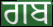
ਗਬ